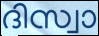
ദിസ്വാ